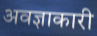
अवज्ञाकारी